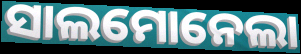
ସାଲମୋନେଲା